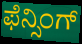
ಫೆನ್ಸಿಂಗ್